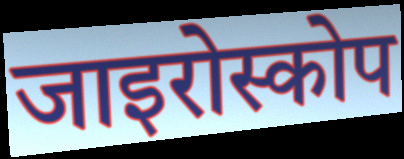
जाइरोस्कोप